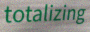
totalizing